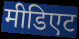
मीडिएट